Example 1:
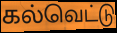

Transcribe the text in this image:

கல்வெட்டு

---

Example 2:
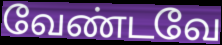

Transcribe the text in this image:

வேண்டவே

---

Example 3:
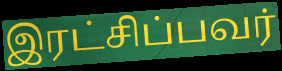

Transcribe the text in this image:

இரட்சிப்பவர்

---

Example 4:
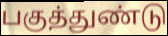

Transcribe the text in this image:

பகுத்துண்டு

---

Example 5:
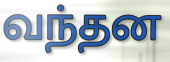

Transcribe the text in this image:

வந்தன